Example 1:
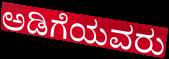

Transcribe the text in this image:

ಅಡಿಗೆಯವರು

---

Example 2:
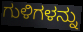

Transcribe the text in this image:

ಗುಳಿಗಳನ್ನು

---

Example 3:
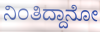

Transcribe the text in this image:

ನಿಂತಿದ್ದಾನೋ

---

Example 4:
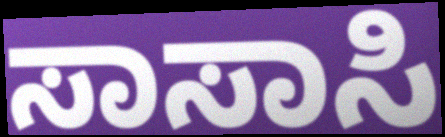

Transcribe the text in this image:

ಸಾಸಾಸಿ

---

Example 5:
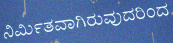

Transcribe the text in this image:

ನಿರ್ಮಿತವಾಗಿರುವುದರಿಂದ